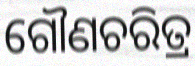
ଗୌଣଚରିତ୍ର